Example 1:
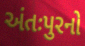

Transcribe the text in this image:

અંતઃપુરનો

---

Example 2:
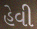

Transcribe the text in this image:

હેવી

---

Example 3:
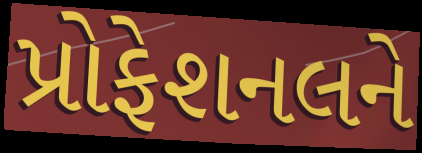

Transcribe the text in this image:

પ્રોફેશનલને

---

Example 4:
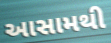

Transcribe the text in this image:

આસામથી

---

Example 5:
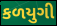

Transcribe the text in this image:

કળયુગી